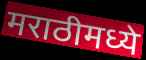
मराठीमध्ये